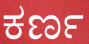
ಕರ್ಣ